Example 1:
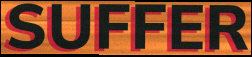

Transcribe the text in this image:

SUFFER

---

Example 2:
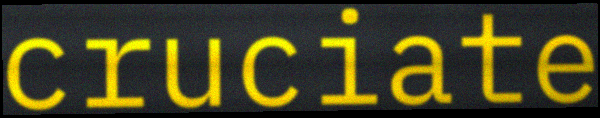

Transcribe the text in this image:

cruciate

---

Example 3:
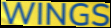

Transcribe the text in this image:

WINGS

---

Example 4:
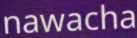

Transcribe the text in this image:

nawacha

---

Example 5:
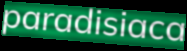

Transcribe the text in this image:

paradisiaca